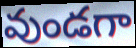
వుండగా